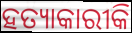
ହତ୍ୟାକାରୀକି